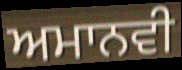
ਅਮਾਨਵੀ